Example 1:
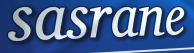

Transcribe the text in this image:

sasrane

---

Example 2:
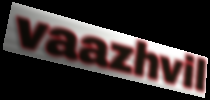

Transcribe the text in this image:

vaazhvil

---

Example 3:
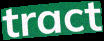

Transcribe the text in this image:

tract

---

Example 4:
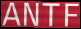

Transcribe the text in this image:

ANTF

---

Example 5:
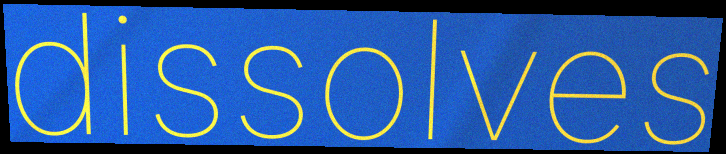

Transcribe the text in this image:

dissolves